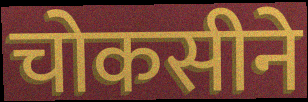
चोकसीने